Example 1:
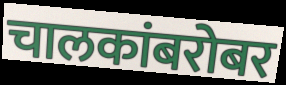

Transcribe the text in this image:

चालकांबरोबर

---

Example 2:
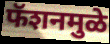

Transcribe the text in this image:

फॅशनमुळे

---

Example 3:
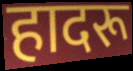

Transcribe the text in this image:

हादरू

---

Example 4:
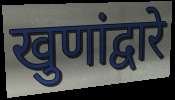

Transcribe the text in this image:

खुणांद्वारे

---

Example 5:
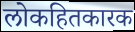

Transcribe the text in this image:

लोकहितकारक